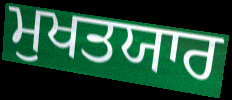
ਮੁਖਤਯਾਰ